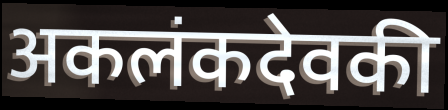
अकलंकदेवकी